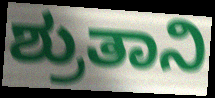
ಶ್ರುತಾನಿ